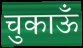
चुकाऊँ